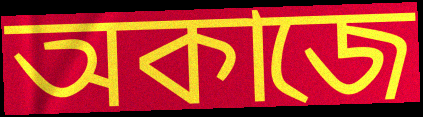
অকাজে